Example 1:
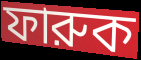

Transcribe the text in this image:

ফারুক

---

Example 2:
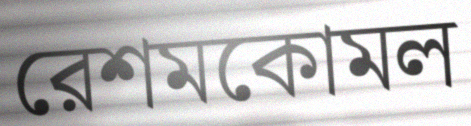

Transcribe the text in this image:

রেশমকোমল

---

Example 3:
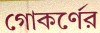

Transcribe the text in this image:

গোকর্ণের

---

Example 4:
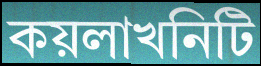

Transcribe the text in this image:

কয়লাখনিটি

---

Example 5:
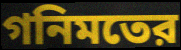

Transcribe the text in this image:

গনিমতের